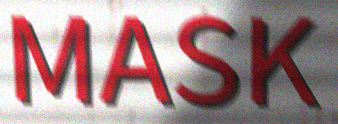
MASK